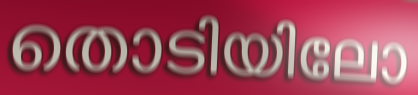
തൊടിയിലോ